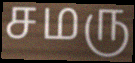
சமரு